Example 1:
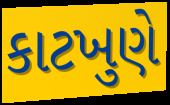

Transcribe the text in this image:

કાટખુણે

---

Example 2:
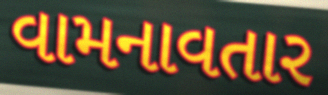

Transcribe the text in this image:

વામનાવતાર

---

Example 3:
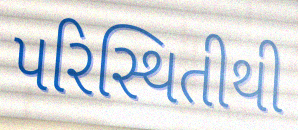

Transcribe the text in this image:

પરિસ્થિતીથી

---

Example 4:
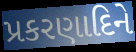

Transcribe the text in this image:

પ્રકરણાદિને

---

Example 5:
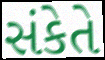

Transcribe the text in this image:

સંકેતે